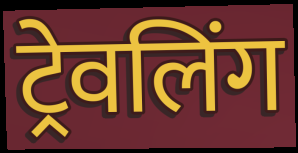
ट्रेवलिंग